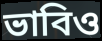
ভাবিও